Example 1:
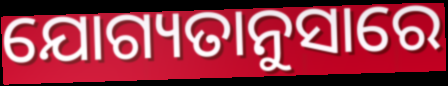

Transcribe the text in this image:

ଯୋଗ୍ୟତାନୁସାରେ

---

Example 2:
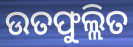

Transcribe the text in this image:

ଉତଫୁଲ୍ଲିତ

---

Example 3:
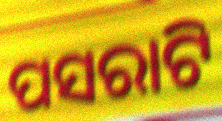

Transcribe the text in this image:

ପସରାଟି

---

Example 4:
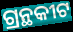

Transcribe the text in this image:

ଗ୍ରନ୍ଥକୀଟ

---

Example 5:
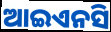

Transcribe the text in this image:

ଆଇଏନସି